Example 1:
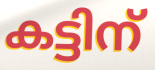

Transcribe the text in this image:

കട്ടിന്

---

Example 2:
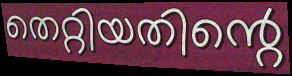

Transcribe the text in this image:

തെറ്റിയതിന്റെ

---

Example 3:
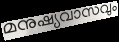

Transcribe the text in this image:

മനുഷ്യവാസവും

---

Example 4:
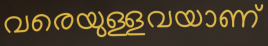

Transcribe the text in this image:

വരെയുള്ളവയാണ്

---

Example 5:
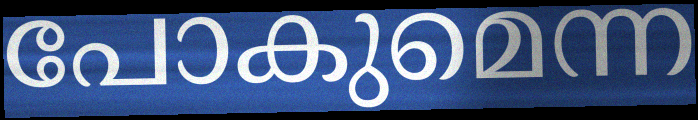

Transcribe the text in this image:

പോകുമെന്ന